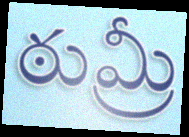
ఠుమ్రీ